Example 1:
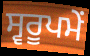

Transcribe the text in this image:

ਸ੍ਵਰੂਪਮੇਂ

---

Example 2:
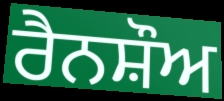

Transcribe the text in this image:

ਰੈਨਸ਼ੌਅ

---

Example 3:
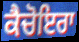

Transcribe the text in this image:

ਕੈਚੋਇਰਾ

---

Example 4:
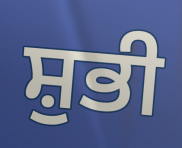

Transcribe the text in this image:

ਸ਼ੁਭੀ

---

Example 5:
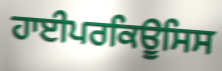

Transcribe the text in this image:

ਹਾਈਪਰਕਿਊਸਿਸ